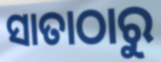
ସାତାଠାରୁ